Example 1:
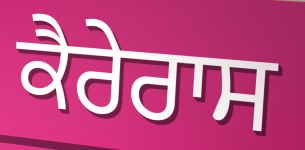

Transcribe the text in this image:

ਕੈਰੇਰਾਸ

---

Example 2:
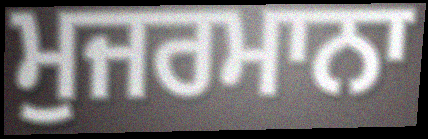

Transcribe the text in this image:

ਮੁਜਰਮਾਨਾ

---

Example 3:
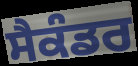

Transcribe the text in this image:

ਸੈਕੰਡਰ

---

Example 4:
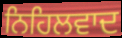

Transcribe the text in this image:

ਨਿਹਿਲਵਾਦ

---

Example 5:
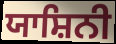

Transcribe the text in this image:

ਯਾਸ਼ਿਨੀ